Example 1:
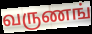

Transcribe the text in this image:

வருணங்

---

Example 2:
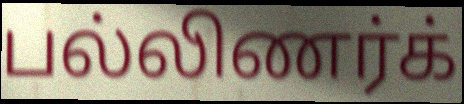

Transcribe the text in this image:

பல்லிணர்க்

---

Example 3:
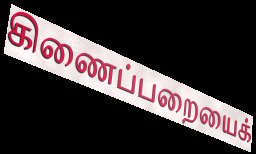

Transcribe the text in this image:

கிணைப்பறையைக்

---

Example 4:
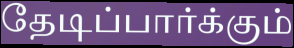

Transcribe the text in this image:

தேடிப்பார்க்கும்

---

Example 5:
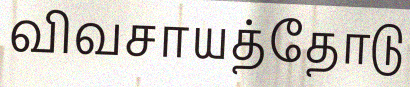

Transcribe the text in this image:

விவசாயத்தோடு